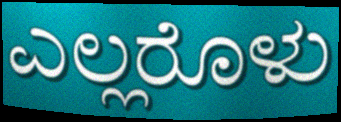
ಎಲ್ಲರೊಳು